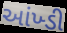
આંખ્ડી